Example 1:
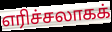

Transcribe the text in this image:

எரிச்சலாகக்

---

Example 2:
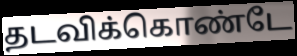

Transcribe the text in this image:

தடவிக்கொண்டே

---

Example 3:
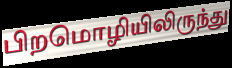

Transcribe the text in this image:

பிறமொழியிலிருந்து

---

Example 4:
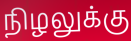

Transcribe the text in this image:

நிழலுக்கு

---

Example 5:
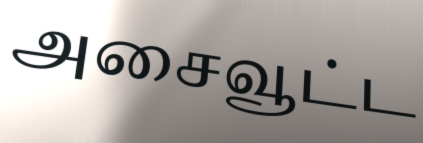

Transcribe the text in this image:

அசைவூட்ட